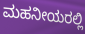
ಮಹನೀಯರಲ್ಲಿ